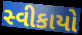
સ્વીકાયો